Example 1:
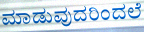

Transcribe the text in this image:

ಮಾಡುವುದರಿಂದಲೆ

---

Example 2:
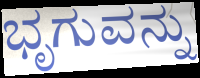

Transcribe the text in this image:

ಭೃಗುವನ್ನು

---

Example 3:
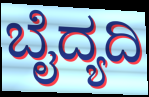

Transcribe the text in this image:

ಬೈದ್ಯದಿ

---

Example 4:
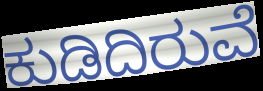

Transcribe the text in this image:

ಕುಡಿದಿರುವೆ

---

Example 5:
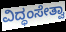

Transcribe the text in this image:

ವಿದ್ಧಂಸೇತ್ವಾ